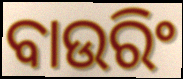
ବାଉରିଂ